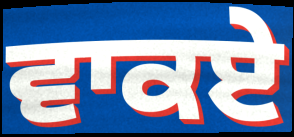
ਵਾਕਏ